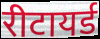
रीटायर्ड